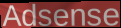
Adsense